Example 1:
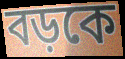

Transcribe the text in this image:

বড়কে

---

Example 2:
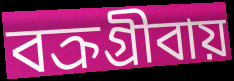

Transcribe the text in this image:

বক্রগ্রীবায়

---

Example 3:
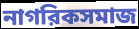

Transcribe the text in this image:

নাগরিকসমাজ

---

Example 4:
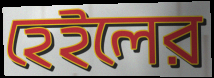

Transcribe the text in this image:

হেইলের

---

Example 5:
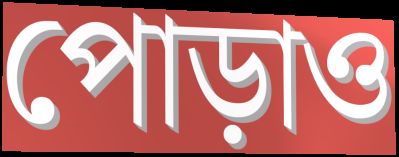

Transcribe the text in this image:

পোড়াও